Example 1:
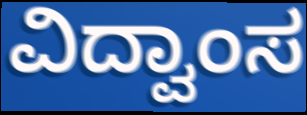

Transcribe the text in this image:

ವಿದ್ವಾಂಸ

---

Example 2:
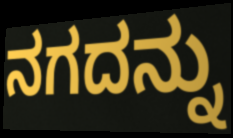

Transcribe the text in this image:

ನಗದನ್ನು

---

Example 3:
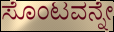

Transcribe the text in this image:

ಸೊಂಟವನ್ನೇ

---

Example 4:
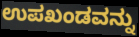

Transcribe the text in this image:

ಉಪಖಂಡವನ್ನು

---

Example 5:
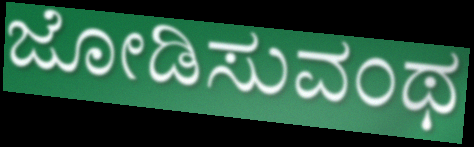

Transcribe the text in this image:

ಜೋಡಿಸುವಂಥ